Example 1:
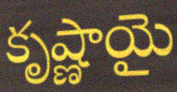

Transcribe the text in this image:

కృష్ణాయై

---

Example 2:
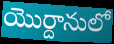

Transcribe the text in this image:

యొర్దానులో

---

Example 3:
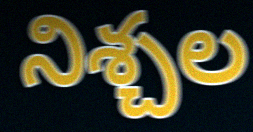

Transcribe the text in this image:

నిశ్చల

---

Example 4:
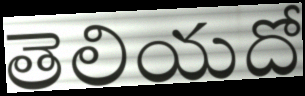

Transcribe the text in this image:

తెలియదో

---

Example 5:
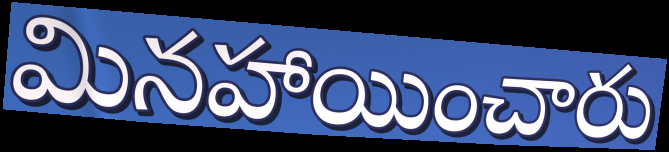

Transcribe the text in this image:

మినహాయించారు